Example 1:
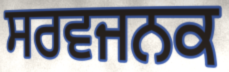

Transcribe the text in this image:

ਸਰਵਜਨਕ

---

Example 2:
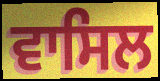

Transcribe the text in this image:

ਵਾਸਿਲ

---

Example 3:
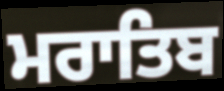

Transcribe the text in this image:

ਮਰਾਤਿਬ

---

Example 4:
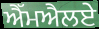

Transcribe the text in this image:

ਐੱਮਐਲਏ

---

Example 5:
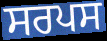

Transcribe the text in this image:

ਸਰਪਸ